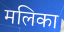
मलिका